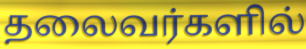
தலைவர்களில்